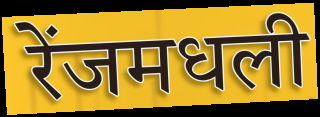
रेंजमधली